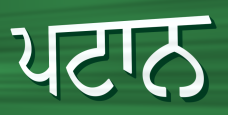
ਪਟਾਨ